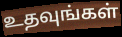
உதவுங்கள்